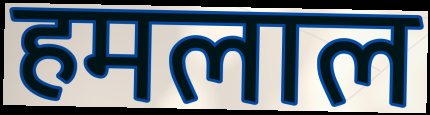
हमलाल